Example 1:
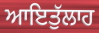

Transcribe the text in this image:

ਆਇਤੁੱਲਾਹ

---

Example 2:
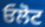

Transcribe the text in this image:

ਓਲੋਟ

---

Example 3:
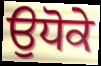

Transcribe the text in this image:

ਉਧੋਕੇ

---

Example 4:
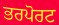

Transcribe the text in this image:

ਭਰਪੋਰਟ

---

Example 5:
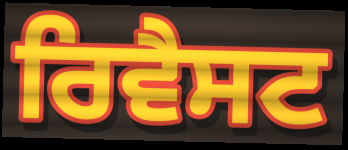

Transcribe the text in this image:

ਰਿਵੈਸਟ